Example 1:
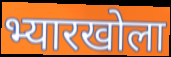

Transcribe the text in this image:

भ्यारखोला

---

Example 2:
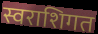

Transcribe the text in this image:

स्वराशिगत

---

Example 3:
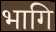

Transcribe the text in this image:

भागि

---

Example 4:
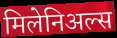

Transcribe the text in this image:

मिलेनिअल्स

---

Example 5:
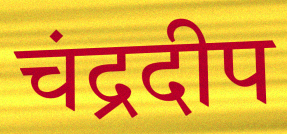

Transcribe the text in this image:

चंद्रदीप